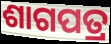
ଶାଗପତ୍ର